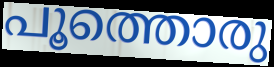
പൂത്തൊരു